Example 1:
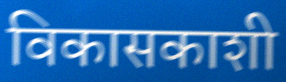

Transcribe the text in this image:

विकासकाशी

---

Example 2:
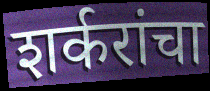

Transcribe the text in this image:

शर्करांचा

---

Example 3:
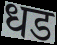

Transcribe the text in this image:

धड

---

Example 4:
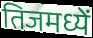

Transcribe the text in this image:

तिजमध्यें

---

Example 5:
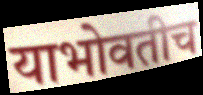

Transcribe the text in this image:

याभोवतीच